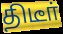
திடீர்